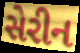
સેરીન